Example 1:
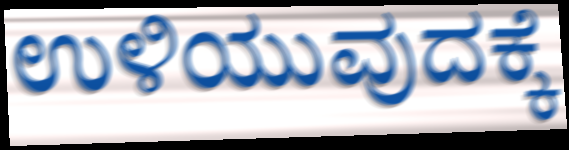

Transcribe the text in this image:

ಉಳಿಯುವುದಕ್ಕೆ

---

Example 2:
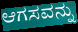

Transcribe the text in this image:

ಆಗಸವನ್ನು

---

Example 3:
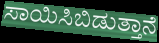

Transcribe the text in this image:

ಸಾಯಿಸಿಬಿಡುತ್ತಾನೆ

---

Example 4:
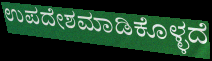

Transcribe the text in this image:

ಉಪದೇಶಮಾಡಿಕೊಳ್ಳದೆ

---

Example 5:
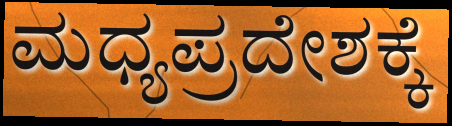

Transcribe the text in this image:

ಮಧ್ಯಪ್ರದೇಶಕ್ಕೆ